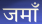
जमाँ